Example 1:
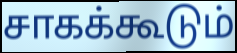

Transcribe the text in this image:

சாகக்கூடும்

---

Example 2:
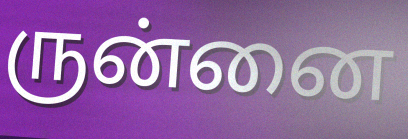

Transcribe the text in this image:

ருன்னை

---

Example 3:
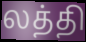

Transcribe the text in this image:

லத்தி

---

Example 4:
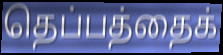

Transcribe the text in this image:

தெப்பத்தைக்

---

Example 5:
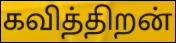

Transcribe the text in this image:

கவித்திறன்